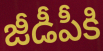
జీడీపీకి